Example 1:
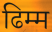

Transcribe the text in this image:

ढिम्म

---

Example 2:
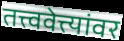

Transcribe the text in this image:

तत्त्ववेत्त्यांवर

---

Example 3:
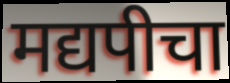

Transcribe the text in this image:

मद्यपीचा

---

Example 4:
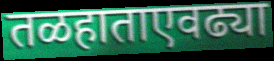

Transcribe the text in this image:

तळहाताएवढ्या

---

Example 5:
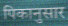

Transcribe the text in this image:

पिकानुसार